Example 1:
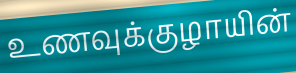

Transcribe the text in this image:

உணவுக்குழாயின்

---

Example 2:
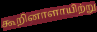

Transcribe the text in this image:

கூறினாளாயிற்று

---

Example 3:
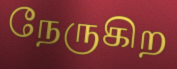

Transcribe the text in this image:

நேருகிற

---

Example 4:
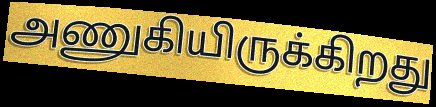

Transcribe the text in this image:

அணுகியிருக்கிறது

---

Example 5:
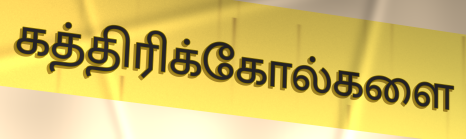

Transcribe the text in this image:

கத்திரிக்கோல்களை